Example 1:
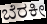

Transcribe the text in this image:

ಬೆರಕೀ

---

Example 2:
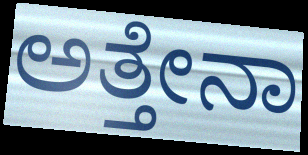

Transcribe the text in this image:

ಅತ್ತೇನಾ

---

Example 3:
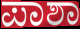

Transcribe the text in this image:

ಪಾಶಾ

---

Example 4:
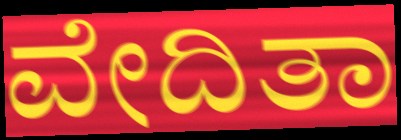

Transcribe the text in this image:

ವೇದಿತಾ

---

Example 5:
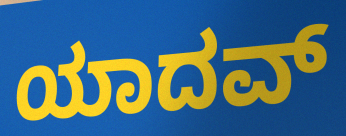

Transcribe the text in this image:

ಯಾದವ್